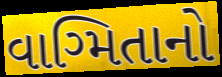
વાગ્મિતાનો